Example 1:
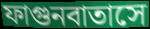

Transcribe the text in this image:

ফাগুনবাতাসে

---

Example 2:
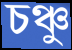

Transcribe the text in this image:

চঞ্চু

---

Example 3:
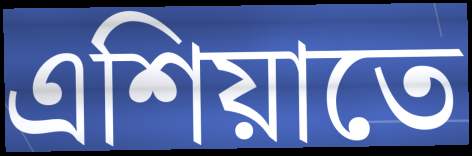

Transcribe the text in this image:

এশিয়াতে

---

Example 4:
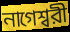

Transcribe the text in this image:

নাগেশ্বরী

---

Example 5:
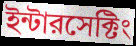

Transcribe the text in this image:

ইন্টারসেক্টিং